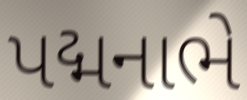
પદ્મનાભે